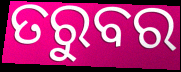
ତରୁବର